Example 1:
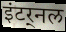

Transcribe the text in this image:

इंटर्नल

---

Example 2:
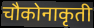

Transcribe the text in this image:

चौकोनाकृती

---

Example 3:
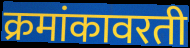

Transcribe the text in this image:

क्रमांकावरती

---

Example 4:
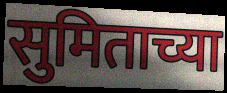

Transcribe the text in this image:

सुमिताच्या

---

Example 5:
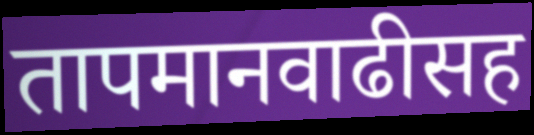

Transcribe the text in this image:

तापमानवाढीसह